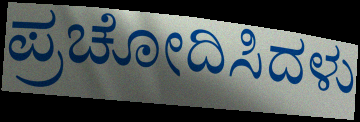
ಪ್ರಚೋದಿಸಿದಳು